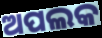
ଅପଲକ